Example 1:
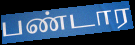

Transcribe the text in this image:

பண்டார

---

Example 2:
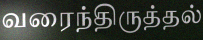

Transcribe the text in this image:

வரைந்திருத்தல்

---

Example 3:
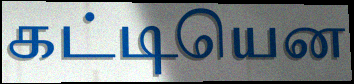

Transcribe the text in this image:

கட்டியென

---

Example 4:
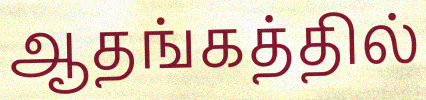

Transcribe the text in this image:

ஆதங்கத்தில்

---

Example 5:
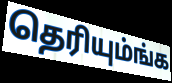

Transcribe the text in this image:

தெரியும்ங்க